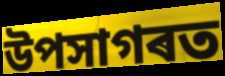
উপসাগৰত